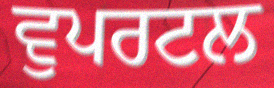
ਵੁਪਰਟਲ